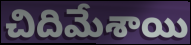
చిదిమేశాయి